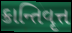
ક્રાન્તિવૃત્ત